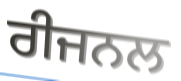
ਰੀਜਨਲ